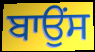
ਬਾਉਂਸ